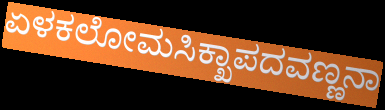
ಏಳಕಲೋಮಸಿಕ್ಖಾಪದವಣ್ಣನಾ